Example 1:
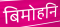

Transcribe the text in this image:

बिमोहनि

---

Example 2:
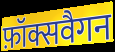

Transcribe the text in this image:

फ़ॉक्सवैगन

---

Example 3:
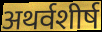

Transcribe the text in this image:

अथर्वशीर्ष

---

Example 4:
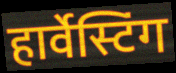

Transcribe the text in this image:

हार्वेस्टिंग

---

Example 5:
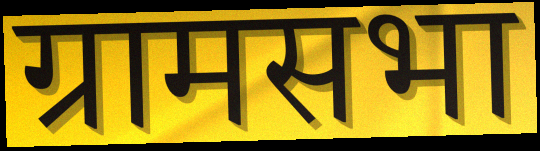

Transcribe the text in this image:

ग्रामसभा